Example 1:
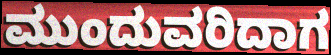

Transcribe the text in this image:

ಮುಂದುವರಿದಾಗ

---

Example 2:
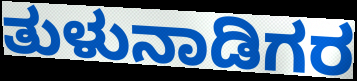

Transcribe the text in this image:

ತುಳುನಾಡಿಗರ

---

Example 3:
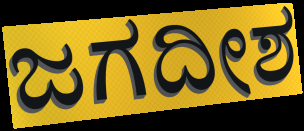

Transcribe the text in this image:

ಜಗದೀಶ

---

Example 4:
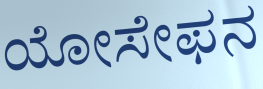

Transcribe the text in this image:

ಯೋಸೇಫನ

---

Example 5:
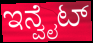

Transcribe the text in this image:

ಇನ್ವೈಟ್